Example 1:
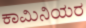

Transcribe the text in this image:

ಕಾಮಿನಿಯರ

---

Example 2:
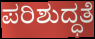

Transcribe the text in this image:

ಪರಿಶುದ್ಧತೆ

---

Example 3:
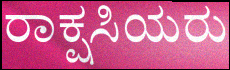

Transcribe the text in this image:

ರಾಕ್ಷಸಿಯರು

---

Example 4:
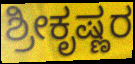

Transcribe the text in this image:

ಶ್ರೀಕೃಷ್ಣರ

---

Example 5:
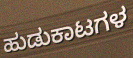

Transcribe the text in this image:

ಹುಡುಕಾಟಗಳ